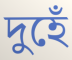
দুহেঁ